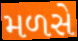
મળસે